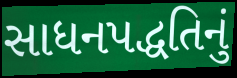
સાધનપદ્ધતિનું